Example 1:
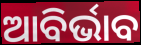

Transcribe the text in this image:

ଆବିର୍ଭାବ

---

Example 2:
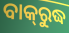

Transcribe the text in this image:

ବାକ୍‌ରୁଦ୍ଧ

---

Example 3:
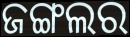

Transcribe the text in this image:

ଜଙ୍ଗଲର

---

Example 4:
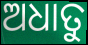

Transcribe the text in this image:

ଅଧାତୁ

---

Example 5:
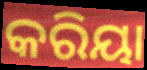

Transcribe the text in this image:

କରିୟା